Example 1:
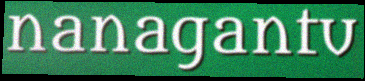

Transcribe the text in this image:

nanagantu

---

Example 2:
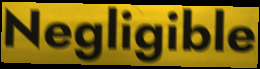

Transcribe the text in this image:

Negligible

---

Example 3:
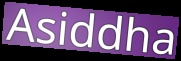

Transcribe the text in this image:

Asiddha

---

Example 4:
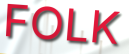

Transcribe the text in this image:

FOLK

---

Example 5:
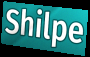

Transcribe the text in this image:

Shilpe